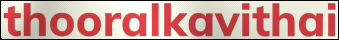
thooralkavithai